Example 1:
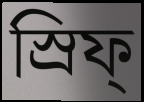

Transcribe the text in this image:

স্রিফ্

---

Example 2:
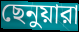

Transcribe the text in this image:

ছেনুয়ারা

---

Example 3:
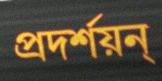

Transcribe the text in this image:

প্রদর্শয়ন্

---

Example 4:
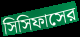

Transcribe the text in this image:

সিসিফাসের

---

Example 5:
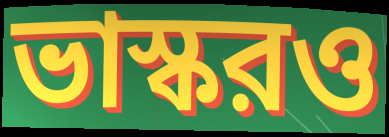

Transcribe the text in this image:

ভাস্করও